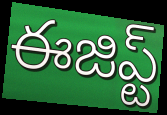
ఈజిప్ట్